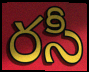
రసీ